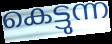
കെട്ടുന്ന